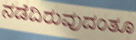
ನಡೆದಿರುವುದಂತೂ